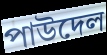
পাউদেল